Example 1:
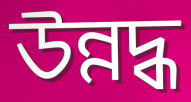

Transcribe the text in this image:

উন্নদ্ধ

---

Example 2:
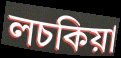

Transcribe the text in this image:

লচকিয়া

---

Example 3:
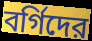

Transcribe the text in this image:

বর্গিদের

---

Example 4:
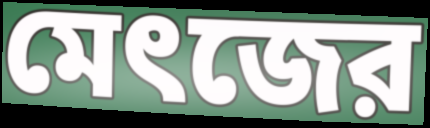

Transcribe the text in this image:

মেৎজের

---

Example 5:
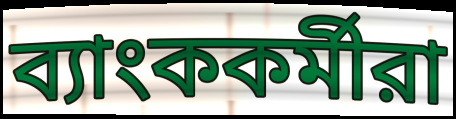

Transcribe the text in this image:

ব্যাংককর্মীরা